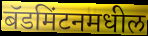
बॅडमिंटनमधील